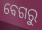
ବେଗରୁ